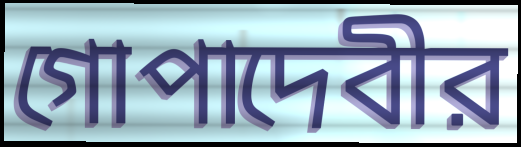
গোপাদেবীর